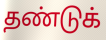
தண்டுக்